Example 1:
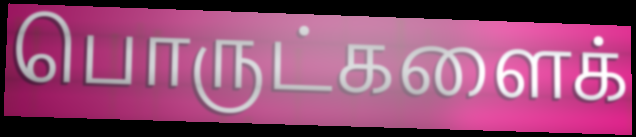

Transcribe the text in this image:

பொருட்களைக்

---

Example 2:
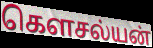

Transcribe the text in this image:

கௌசல்யன்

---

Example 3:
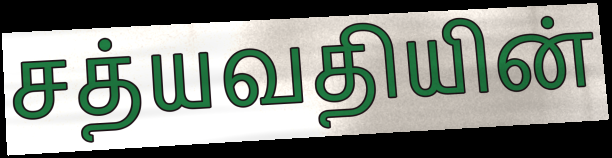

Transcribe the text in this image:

சத்யவதியின்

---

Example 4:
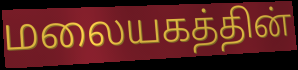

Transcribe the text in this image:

மலையகத்தின்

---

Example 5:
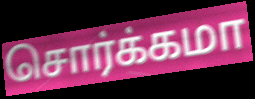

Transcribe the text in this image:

சொர்க்கமா